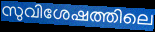
സുവിശേഷത്തിലെ